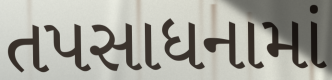
તપસાધનામાં